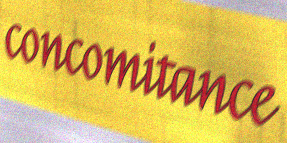
concomitance